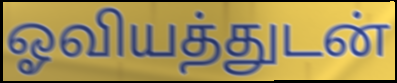
ஓவியத்துடன்